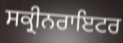
ਸਕ੍ਰੀਨਰਾਇਟਰ